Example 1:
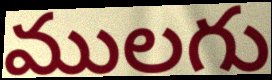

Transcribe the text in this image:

ములగు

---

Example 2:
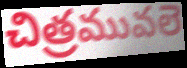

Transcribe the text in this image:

చిత్రమువలె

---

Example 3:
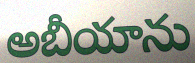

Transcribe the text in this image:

అబీయాను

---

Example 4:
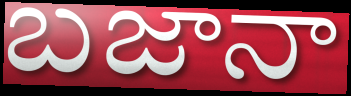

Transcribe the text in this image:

బజానా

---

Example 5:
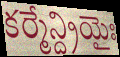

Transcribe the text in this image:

కర్మేన్ద్రియైః